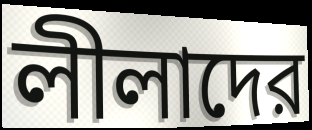
লীলাদের